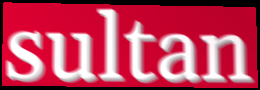
sultan